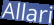
Allari